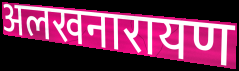
अलखनारायण